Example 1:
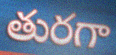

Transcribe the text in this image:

తురగా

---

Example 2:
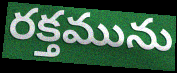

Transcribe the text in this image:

రక్తమును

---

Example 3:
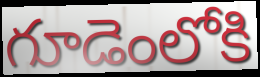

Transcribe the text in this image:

గూడెంలోకి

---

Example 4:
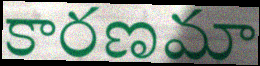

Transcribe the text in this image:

కారణమా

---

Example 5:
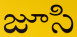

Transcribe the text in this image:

జూసి